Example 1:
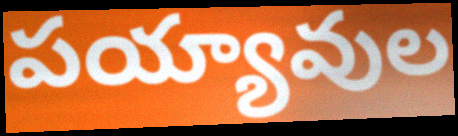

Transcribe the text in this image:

పయ్యావుల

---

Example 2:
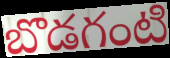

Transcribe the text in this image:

బొడగంటి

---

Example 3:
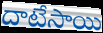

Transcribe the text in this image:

దాటేసాయి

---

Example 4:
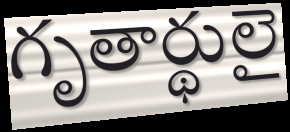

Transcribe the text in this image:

గృతార్థులై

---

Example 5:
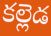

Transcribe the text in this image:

కల్లెడ